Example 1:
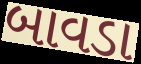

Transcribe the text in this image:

બાવડા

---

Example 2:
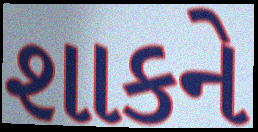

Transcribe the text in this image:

શાકને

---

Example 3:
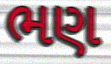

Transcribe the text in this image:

ભણ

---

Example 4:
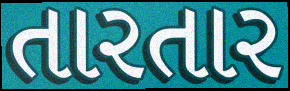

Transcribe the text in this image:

તારતાર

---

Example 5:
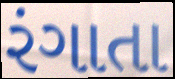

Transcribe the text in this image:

રંગાતા